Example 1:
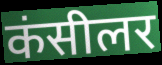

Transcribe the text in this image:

कंसीलर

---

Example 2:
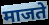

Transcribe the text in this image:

माजते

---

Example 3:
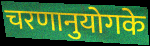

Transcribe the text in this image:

चरणानुयोगके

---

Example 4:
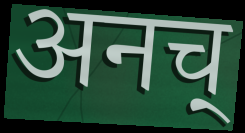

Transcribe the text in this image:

अनच्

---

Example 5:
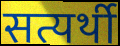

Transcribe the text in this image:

सत्यर्थी